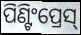
ପିଣ୍ଟିଂପ୍ରେସ୍